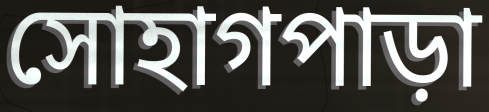
সোহাগপাড়া